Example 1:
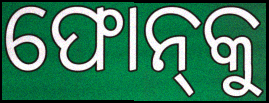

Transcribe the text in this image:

ଫୋନ୍‌କୁ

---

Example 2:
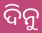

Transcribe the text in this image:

ଦିନୁ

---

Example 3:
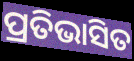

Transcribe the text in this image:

ପ୍ରତିଭାସିତ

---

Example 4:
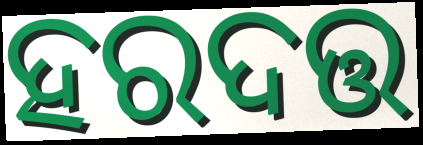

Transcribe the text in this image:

ହରଦତ୍ତ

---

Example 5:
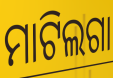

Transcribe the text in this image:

ମାଟିଲଗା